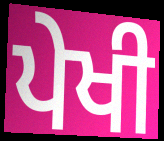
ਪੇਖੀ